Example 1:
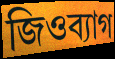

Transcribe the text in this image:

জিওব্যাগ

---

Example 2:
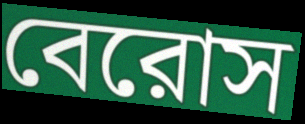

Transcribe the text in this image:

বেরোস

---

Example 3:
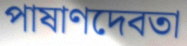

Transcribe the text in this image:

পাষাণদেবতা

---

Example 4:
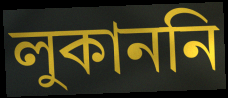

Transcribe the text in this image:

লুকাননি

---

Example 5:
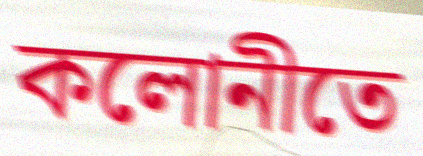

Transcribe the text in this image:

কলোনীতে